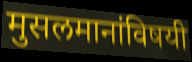
मुसलमानांविषयी